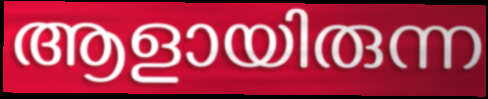
ആളായിരുന്ന